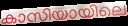
കാസിയായിലെ